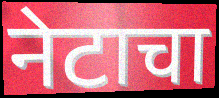
नेटाचा